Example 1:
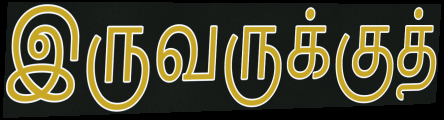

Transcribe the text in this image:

இருவருக்குத்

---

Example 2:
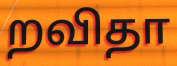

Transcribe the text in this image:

றவிதா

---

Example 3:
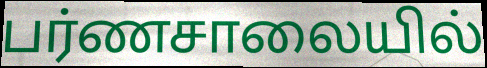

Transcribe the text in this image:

பர்ணசாலையில்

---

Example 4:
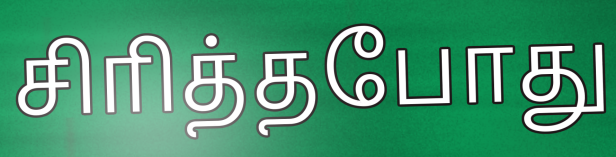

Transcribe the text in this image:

சிரித்தபோது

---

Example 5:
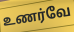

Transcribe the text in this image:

உணர்வே